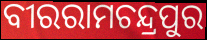
ବୀରରାମଚନ୍ଦ୍ରପୁର